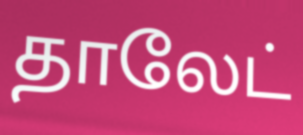
தாலேட்